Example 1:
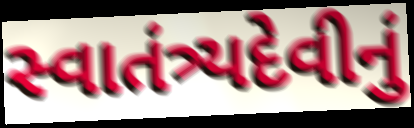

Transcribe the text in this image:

સ્વાતંત્ર્યદેવીનું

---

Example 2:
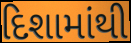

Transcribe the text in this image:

દિશામાંથી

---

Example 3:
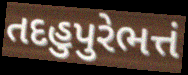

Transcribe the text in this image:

તદહુપુરેભત્તં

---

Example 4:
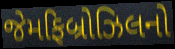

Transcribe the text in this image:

જેમફિબ્રોઝિલનો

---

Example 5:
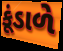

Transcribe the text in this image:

કૂંડાળે